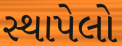
સ્થાપેલો